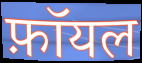
फ़ॉयल